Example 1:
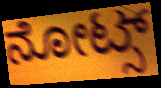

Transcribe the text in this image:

ನೋಟ್ಸ್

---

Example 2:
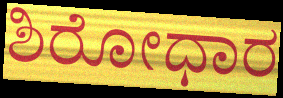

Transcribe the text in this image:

ಶಿರೋಧಾರ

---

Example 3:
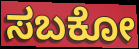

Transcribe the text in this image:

ಸಬಕೋ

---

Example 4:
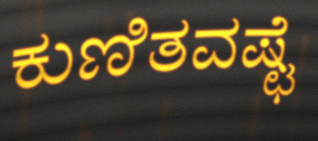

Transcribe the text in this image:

ಕುಣಿತವಷ್ಟೆ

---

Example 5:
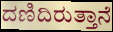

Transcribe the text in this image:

ದಣಿದಿರುತ್ತಾನೆ